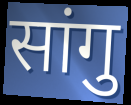
सांगु